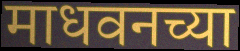
माधवनच्या